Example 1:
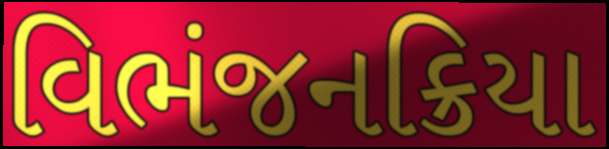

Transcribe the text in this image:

વિભંજનક્રિયા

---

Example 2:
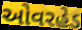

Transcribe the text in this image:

ઓવરહેડ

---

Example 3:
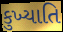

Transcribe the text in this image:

કુખ્યાતિ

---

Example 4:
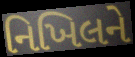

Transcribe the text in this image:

નિખિલને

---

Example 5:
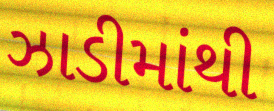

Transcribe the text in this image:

ઝાડીમાંથી